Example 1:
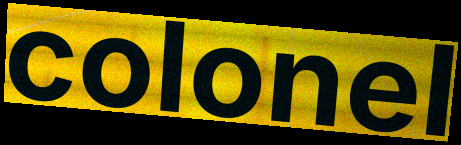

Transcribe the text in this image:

colonel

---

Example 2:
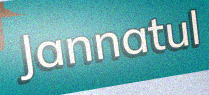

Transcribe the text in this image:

Jannatul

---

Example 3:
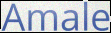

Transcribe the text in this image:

Amale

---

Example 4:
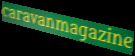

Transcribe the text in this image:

caravanmagazine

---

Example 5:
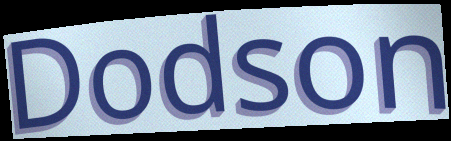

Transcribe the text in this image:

Dodson